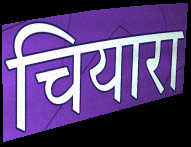
चियारा